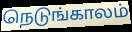
நெடுங்காலம்